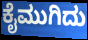
ಕೈಮುಗಿದು